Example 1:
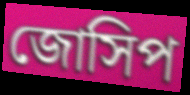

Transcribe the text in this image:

জোসিপ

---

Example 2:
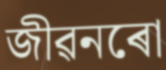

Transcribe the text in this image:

জীৱনৰো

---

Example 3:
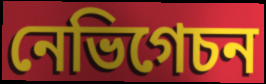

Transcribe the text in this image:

নেভিগেচন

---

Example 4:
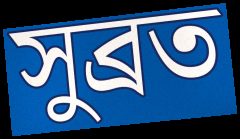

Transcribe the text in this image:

সুব্ৰত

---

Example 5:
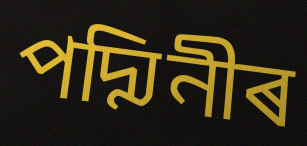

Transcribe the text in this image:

পদ্মিনীৰ